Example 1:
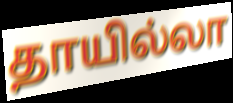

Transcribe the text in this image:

தாயில்லா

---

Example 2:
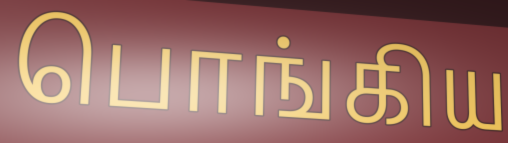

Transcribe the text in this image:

பொங்கிய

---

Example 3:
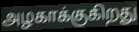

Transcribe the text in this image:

அழகாக்குகிறது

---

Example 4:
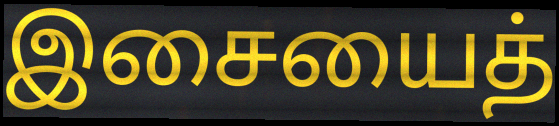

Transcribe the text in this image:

இசையைத்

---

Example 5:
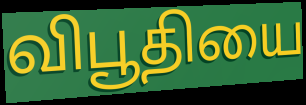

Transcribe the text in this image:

விபூதியை